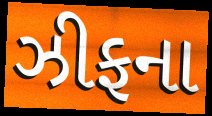
ઝીફના